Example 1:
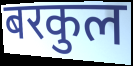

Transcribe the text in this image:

बरकुल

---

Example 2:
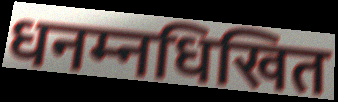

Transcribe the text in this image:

धनम्नधिखित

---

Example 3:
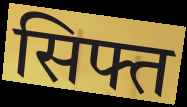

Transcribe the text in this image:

सिफ्त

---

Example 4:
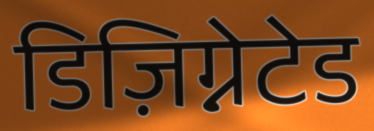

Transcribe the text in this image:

डिज़िग्नेटेड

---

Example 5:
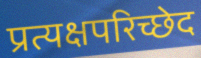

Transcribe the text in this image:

प्रत्यक्षपरिच्छेद